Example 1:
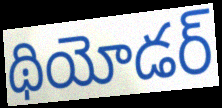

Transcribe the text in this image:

థియోడర్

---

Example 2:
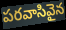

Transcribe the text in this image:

పరవాసివైన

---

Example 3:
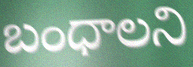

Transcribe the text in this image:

బంధాలని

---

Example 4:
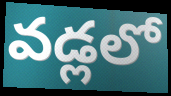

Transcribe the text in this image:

వడ్లలో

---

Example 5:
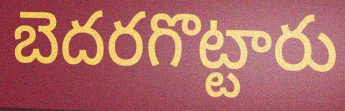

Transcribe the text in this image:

బెదరగొట్టారు